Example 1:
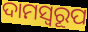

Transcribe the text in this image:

ଦାମସ୍ୱରୂପ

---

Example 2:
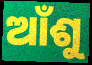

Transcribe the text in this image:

ଆଁଶୁ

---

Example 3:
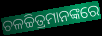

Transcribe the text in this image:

ଚଳଚ୍ଚିତ୍ରମାନଙ୍କରେ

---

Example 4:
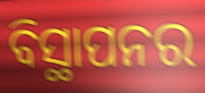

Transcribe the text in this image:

ବିସ୍ଥାପନର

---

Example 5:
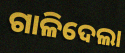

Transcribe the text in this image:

ଗାଳିଦେଲା